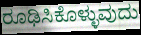
ರೂಢಿಸಿಕೊಳ್ಳುವುದು